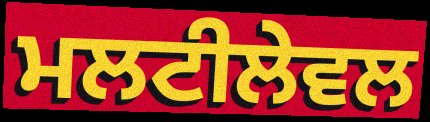
ਮਲਟੀਲੇਵਲ